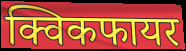
क्विकफायर